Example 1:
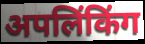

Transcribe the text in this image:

अपलिंकिंग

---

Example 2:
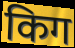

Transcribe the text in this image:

किग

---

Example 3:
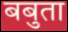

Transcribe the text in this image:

बबुता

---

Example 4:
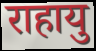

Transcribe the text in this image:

राहायु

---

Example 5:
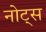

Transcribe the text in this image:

नोट्स